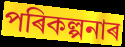
পৰিকল্পনাৰ